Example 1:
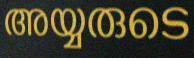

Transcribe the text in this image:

അയ്യരുടെ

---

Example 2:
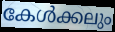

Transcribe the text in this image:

കേൾക്കലും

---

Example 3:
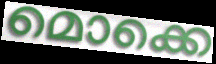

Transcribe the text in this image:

മൊക്കെ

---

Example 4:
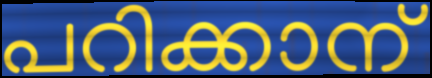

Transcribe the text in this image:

പറിക്കാന്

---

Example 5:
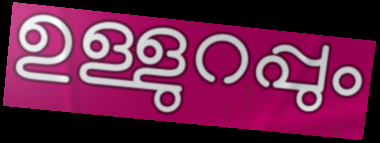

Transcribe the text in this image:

ഉള്ളുറപ്പും